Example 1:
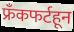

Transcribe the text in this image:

फ्रँकफर्टहून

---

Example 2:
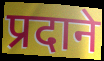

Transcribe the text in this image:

प्रदाने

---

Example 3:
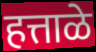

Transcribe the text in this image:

हत्ताळे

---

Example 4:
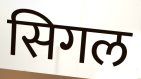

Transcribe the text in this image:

सिगल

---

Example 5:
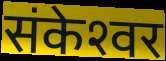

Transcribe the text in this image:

संकेश्वर